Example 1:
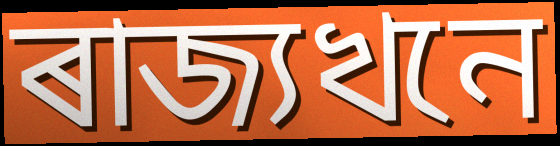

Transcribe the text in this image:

ৰাজ্যখনে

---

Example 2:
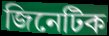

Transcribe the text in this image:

জিনেটিক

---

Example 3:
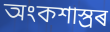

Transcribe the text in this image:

অংকশাস্ত্ৰৰ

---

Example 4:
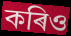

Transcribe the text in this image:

কৰিও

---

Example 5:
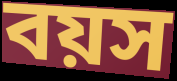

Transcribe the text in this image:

বয়স